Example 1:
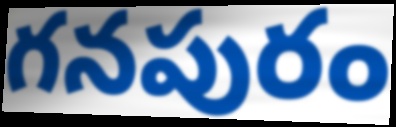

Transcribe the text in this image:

గనపురం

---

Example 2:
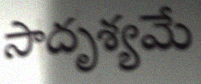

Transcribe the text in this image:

సాదృశ్యమే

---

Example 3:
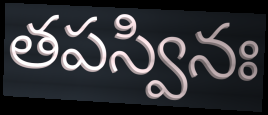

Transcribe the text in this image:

తపస్వినః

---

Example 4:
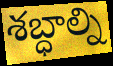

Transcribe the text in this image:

శబ్ధాల్ని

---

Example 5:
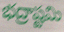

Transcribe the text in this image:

భద్రాష్టమి